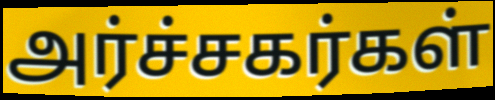
அர்ச்சகர்கள்